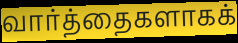
வார்த்தைகளாகக்